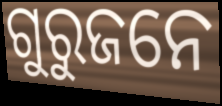
ଗୁରୁଜନେ